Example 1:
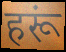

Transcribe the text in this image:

हरूं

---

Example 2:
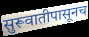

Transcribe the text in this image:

सुरूवातीपासूनच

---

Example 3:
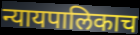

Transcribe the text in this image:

न्यायपालिकाच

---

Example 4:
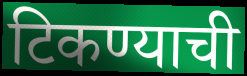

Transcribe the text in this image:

टिकण्याची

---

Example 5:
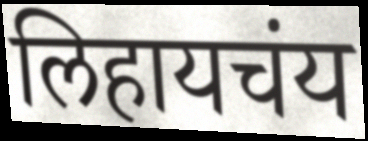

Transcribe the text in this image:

लिहायचंय